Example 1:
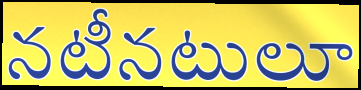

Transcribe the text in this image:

నటీనటులూ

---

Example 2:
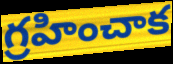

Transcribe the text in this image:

గ్రహించాక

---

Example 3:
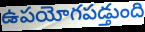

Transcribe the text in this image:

ఉపయోగపడ్తుంది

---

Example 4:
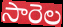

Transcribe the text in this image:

సారెల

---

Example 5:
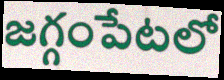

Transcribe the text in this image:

జగ్గంపేటలో